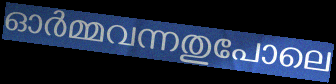
ഓർമ്മവന്നതുപോലെ